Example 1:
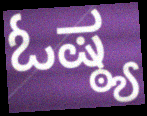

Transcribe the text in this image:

ಓಷ್ಠ್ಯ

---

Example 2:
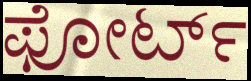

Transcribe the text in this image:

ಫೋರ್ಟ್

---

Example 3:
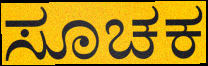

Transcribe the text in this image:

ಸೂಚಕ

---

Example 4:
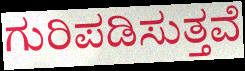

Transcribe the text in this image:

ಗುರಿಪಡಿಸುತ್ತವೆ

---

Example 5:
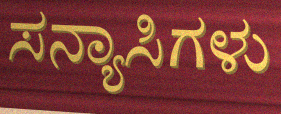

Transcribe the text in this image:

ಸನ್ಯಾಸಿಗಳು